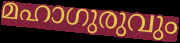
മഹാഗുരുവും